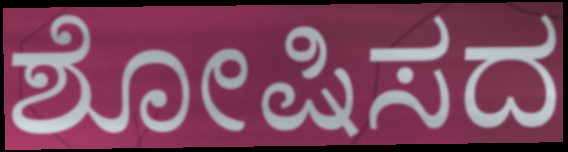
ಶೋಷಿಸದ